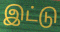
இட்டு